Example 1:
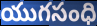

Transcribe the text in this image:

యుగసంధి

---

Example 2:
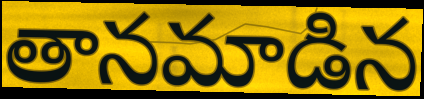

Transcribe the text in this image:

తానమాడిన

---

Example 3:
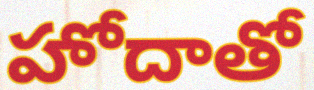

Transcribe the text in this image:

హోదాతో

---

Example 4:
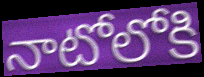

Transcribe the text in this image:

నాటోలోకి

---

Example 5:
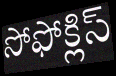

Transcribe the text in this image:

సోఫోక్లిస్